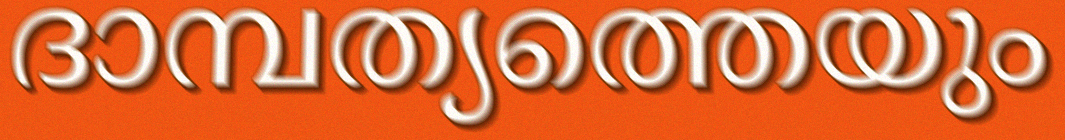
ദാമ്പത്യത്തെയും